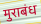
मुराबंध